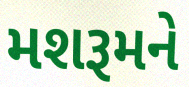
મશરૂમને